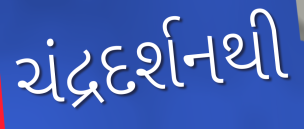
ચંદ્રદર્શનથી